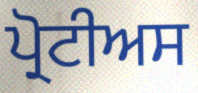
ਪ੍ਰੋਟੀਅਸ